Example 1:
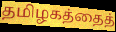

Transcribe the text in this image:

தமிழகத்தைத்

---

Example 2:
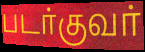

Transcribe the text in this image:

படர்குவர்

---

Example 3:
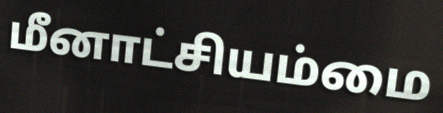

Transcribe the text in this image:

மீனாட்சியம்மை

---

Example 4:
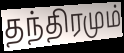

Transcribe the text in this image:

தந்திரமும்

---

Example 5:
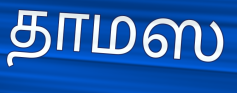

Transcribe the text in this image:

தாமஸ